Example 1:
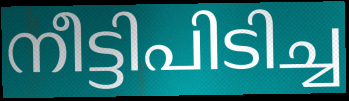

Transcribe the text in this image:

നീട്ടിപിടിച്ച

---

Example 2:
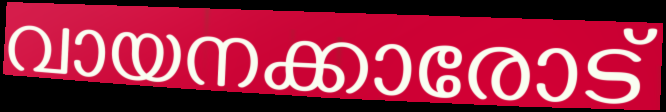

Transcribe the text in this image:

വായനക്കാരോട്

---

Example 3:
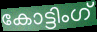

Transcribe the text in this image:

കോട്ടിംഗ്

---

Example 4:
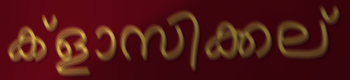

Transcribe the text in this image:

ക്ളാസിക്കല്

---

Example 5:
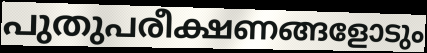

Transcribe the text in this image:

പുതുപരീക്ഷണങ്ങളോടും